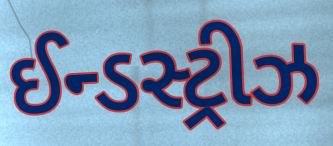
ઈન્ડસ્ટ્રીઝ